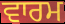
ਵਾਰਮ